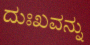
ದುಃಖವನ್ನು